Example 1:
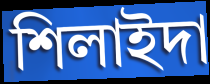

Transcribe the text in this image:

শিলাইদা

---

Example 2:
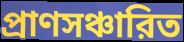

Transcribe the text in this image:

প্রাণসঞ্চারিত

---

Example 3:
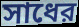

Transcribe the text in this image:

সাধের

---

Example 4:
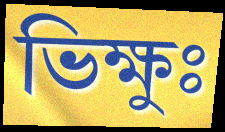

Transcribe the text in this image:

ভিক্ষুঃ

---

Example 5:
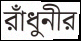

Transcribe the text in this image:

রাঁধুনীর